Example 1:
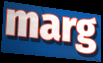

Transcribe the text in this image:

marg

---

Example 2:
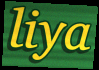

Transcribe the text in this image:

liya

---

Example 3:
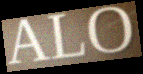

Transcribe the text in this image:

ALO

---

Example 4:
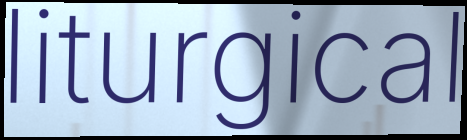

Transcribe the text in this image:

liturgical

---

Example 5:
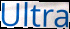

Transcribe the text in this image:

Ultra